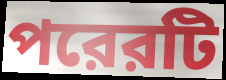
পরেরটি